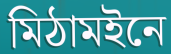
মিঠামইনে